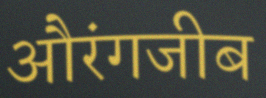
औरंगजीब